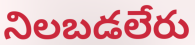
నిలబడలేరు